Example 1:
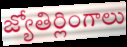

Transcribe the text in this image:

జ్యోతిర్లింగాలు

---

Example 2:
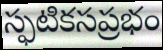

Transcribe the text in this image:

స్ఫటికసప్రభం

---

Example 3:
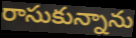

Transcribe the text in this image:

రాసుకున్నాను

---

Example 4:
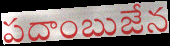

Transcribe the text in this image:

పదాంబుజేన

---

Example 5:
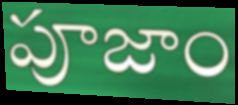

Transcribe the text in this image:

పూజాం